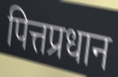
पित्तप्रधान